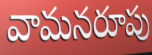
వామనరూపు